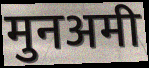
मुनअमी